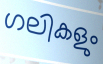
ഗലികളും